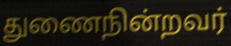
துணைநின்றவர்